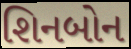
શિનબોન